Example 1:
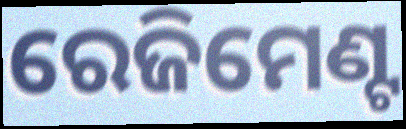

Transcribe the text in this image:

ରେଜିମେଣ୍ଟ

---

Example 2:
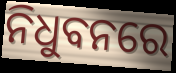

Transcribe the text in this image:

ନିଧୁବନରେ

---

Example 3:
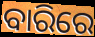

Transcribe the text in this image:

ବାରିରେ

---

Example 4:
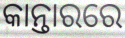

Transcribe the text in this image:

କାନ୍ତାରରେ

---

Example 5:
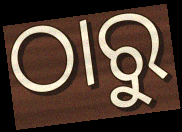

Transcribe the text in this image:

ଠାରୁ